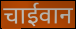
चाईवान